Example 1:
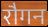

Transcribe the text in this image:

रौगन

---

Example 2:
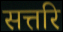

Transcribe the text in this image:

सत्तरि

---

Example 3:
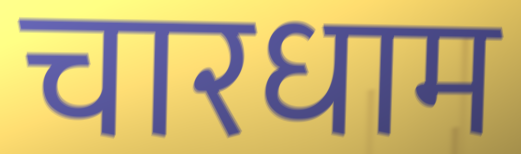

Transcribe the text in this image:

चारधाम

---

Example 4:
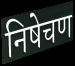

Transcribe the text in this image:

निषेचण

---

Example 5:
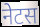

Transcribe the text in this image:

नेटस